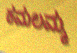
ಕಮಲಮ್ಮ